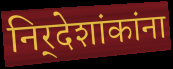
निर्देशांकांना